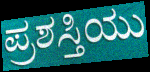
ಪ್ರಶಸ್ತಿಯು